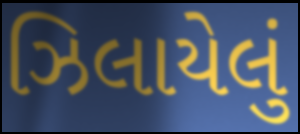
ઝિલાયેલું